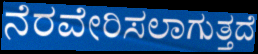
ನೆರವೇರಿಸಲಾಗುತ್ತದೆ